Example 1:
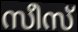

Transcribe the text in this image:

സീസ്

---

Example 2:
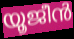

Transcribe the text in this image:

യൂജീൻ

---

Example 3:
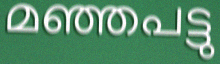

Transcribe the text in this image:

മഞ്ഞപട്ടു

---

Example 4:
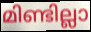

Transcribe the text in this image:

മിണ്ടില്ലാ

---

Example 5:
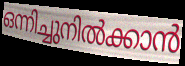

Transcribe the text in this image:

ഒന്നിച്ചുനിൽക്കാൻ